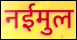
नईमुल